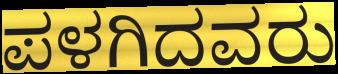
ಪಳಗಿದವರು